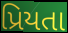
પ્રિયતા